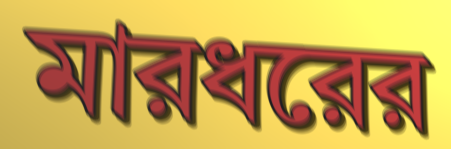
মারধরের